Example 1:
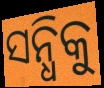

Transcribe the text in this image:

ସନ୍ଧିକୁ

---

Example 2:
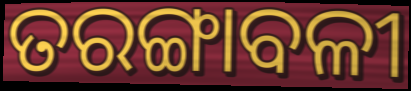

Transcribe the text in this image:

ତରଙ୍ଗାବଳୀ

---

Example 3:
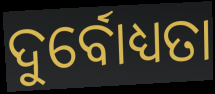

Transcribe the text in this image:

ଦୁର୍ବୋଧ୍ୟତା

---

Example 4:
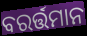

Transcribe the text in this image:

ବରର୍ତ୍ତମାନ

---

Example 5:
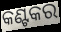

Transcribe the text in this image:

କଣ୍ଟକର